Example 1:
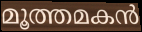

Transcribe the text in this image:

മൂത്തമകൻ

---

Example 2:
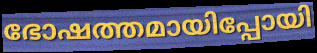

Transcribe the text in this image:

ഭോഷത്തമായിപ്പോയി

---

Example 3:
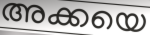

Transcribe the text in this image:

അക്കയെ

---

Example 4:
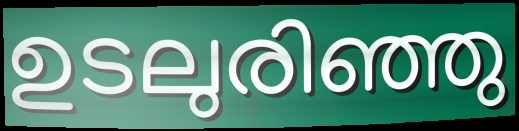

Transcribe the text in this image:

ഉടലുരിഞ്ഞു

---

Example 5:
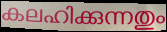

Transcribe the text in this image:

കലഹിക്കുന്നതും